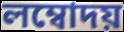
লম্বোদয়